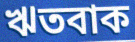
ঋতবাক